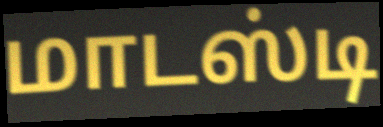
மாடஸ்டி